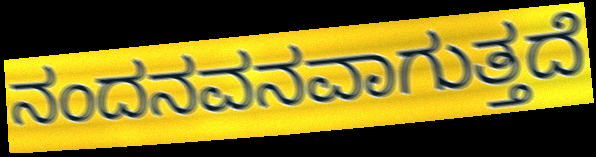
ನಂದನವನವಾಗುತ್ತದೆ